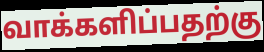
வாக்களிப்பதற்கு